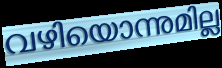
വഴിയൊന്നുമില്ല